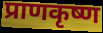
प्राणकृष्ण